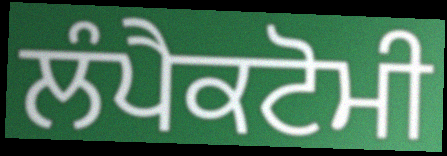
ਲੰਪੈਕਟੋਮੀ